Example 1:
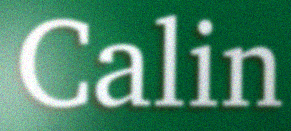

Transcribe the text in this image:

Calin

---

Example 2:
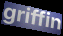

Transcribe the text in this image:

griffin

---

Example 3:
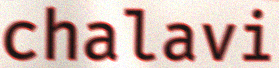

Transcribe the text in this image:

chalavi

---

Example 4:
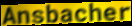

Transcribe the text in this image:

Ansbacher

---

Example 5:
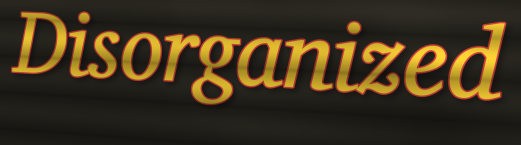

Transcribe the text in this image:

Disorganized